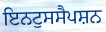
ਇਨਟੁਸਸੈਪਸ਼ਨ